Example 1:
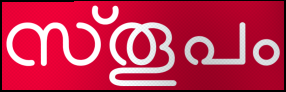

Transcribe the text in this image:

സ്തൂപം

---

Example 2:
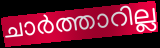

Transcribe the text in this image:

ചാർത്താറില്ല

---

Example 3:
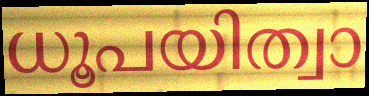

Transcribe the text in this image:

ധൂപയിത്വാ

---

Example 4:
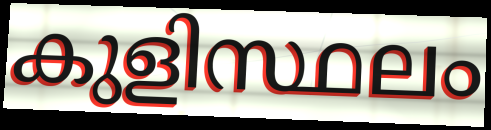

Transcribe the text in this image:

കുളിസ്ഥലം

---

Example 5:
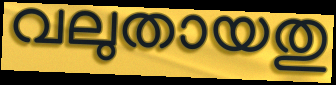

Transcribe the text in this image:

വലുതായതു